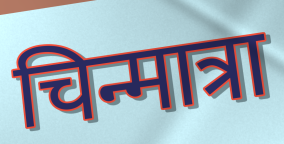
चिन्मात्रा